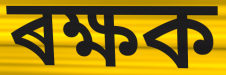
ৰক্ষক